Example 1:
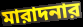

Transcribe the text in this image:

মারাদনার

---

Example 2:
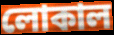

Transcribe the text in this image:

লোকাল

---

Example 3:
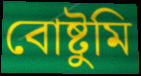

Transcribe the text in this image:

বোষ্টুমি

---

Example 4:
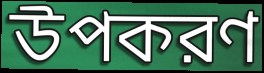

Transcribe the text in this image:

উপকরণ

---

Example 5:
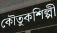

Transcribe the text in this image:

কৌতুকশিল্পী